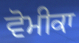
ਵੋਮੀਕਾ